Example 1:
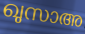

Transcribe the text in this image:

ഖുസാഅ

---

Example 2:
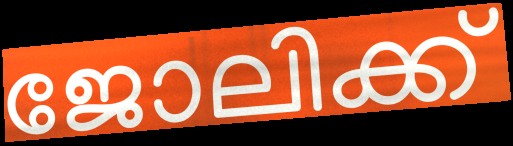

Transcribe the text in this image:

ജോലിക്ക്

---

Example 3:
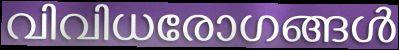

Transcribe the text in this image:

വിവിധരോഗങ്ങൾ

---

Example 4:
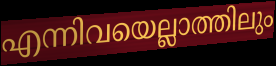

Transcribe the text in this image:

എന്നിവയെല്ലാത്തിലും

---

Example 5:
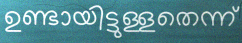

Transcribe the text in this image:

ഉണ്ടായിട്ടുള്ളതെന്ന്